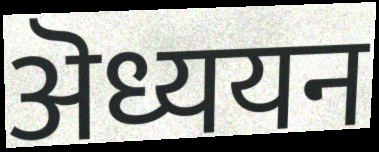
ऄध्ययन